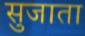
सुजाता